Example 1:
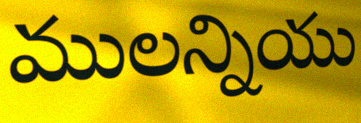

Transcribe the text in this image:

ములన్నియు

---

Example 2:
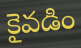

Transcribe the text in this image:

కైవడిం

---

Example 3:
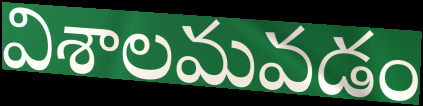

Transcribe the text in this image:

విశాలమవడం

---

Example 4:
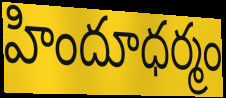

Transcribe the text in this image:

హిందూధర్మం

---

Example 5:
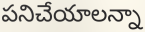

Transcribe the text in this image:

పనిచేయాలన్నా